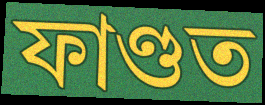
ফাণ্ডত